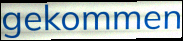
gekommen